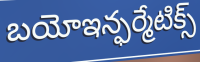
బయోఇన్ఫర్మేటిక్స్